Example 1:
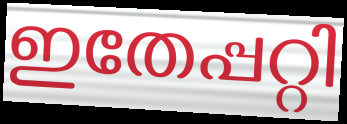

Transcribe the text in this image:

ഇതേപ്പറ്റി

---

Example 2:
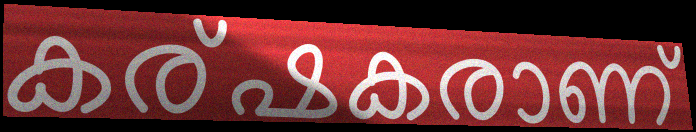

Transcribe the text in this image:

കര്ഷകരാണ്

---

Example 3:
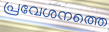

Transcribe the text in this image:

പ്രവേശനത്തെ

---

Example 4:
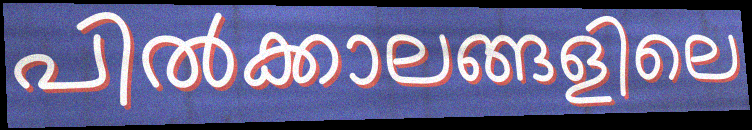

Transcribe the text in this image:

പിൽക്കാലങ്ങളിലെ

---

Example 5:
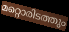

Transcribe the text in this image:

മറ്റൊരിടത്തും